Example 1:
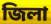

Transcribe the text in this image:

জিলা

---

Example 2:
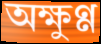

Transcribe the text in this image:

অক্ষুণ্ণ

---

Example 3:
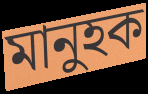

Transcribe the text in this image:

মানুহক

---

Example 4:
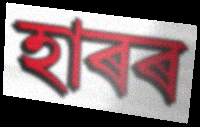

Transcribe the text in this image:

হাৰৰ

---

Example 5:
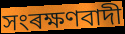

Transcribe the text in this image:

সংৰক্ষণবাদী